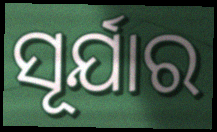
ସୂର୍ଯାର